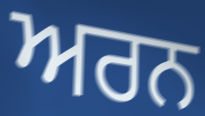
ਅਰਨ